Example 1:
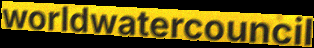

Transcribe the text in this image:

worldwatercouncil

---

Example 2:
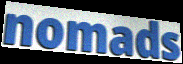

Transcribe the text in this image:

nomads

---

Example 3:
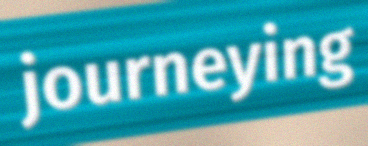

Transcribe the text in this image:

journeying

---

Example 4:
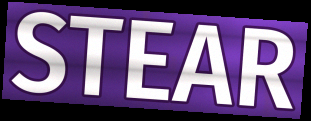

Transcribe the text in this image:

STEAR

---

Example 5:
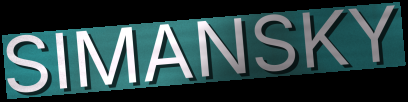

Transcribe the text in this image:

SIMANSKY